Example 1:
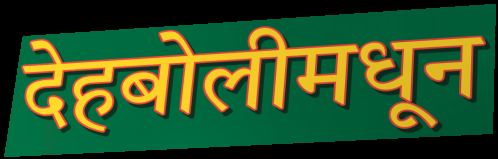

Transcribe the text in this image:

देहबोलीमधून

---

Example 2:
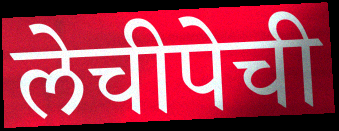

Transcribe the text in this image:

लेचीपेची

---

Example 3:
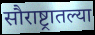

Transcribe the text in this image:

सौराष्ट्रातल्या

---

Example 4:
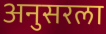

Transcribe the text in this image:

अनुसरला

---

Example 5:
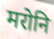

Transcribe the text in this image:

मरोनि